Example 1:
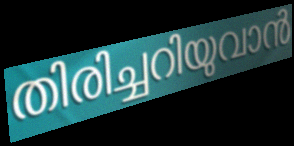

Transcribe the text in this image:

തിരിച്ചറിയുവാൻ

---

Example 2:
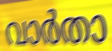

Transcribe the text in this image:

വാർതാ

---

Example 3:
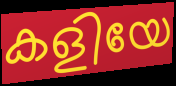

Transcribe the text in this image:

കളിയേ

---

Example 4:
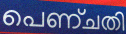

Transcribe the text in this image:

പെണ്ചതി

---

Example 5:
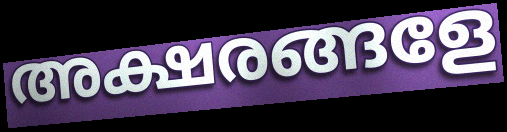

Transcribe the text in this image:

അക്ഷരങ്ങളേ